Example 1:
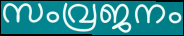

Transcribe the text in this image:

സംവ്രജനം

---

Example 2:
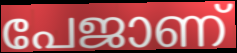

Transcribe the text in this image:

പേജാണ്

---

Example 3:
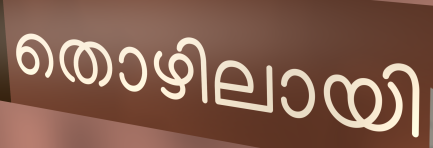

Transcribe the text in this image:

തൊഴിലായി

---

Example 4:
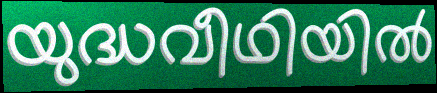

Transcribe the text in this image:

യുദ്ധവീഥിയിൽ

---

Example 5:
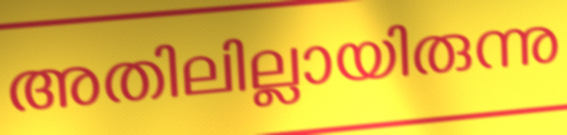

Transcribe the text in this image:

അതിലില്ലായിരുന്നു